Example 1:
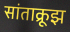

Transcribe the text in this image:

सांताक्रूझ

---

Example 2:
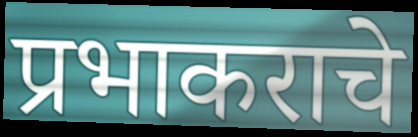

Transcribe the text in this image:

प्रभाकराचे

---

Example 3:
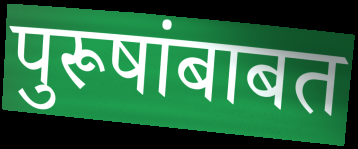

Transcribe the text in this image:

पुरूषांबाबत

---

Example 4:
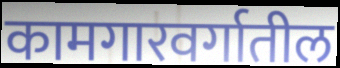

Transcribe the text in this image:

कामगारवर्गातील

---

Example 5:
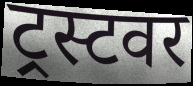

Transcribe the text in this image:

ट्रस्टवर